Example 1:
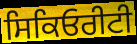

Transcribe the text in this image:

ਸਿਕਿਓਰੀਟੀ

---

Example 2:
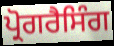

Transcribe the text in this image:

ਪ੍ਰੋਗਰੈਸਿੰਗ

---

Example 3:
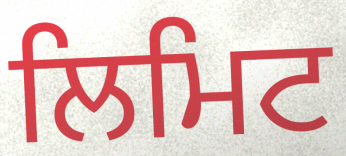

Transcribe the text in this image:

ਲਿਮਿਟ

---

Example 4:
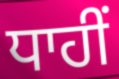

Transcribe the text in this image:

ਧਾਹੀਂ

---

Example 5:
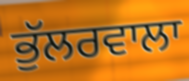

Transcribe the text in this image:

ਭੁੱਲਰਵਾਲਾ